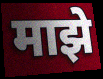
माझे